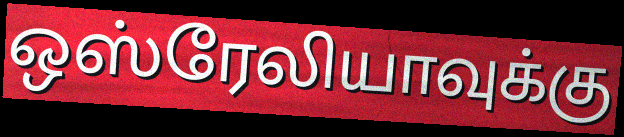
ஒஸ்ரேலியாவுக்கு